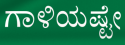
ಗಾಳಿಯಷ್ಟೇ